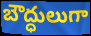
బౌద్ధులుగా